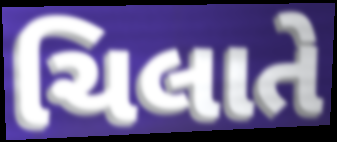
ચિલાતે